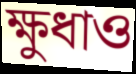
ক্ষুধাও